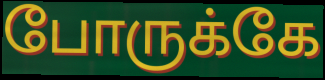
போருக்கே